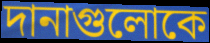
দানাগুলোকে